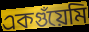
একগুঁয়েমি